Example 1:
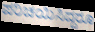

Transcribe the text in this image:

ಪರಿಚಯಿಸಿದ್ದರೂ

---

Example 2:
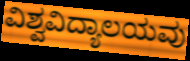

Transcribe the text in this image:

ವಿಶ್ವವಿದ್ಯಾಲಯವು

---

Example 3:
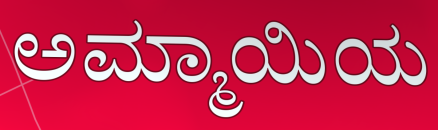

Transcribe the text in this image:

ಅಮ್ಮಾಯಿಯ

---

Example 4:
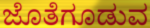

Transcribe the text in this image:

ಜೊತೆಗೂಡುವ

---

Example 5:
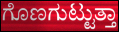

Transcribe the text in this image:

ಗೊಣಗುಟ್ಟುತ್ತಾ